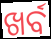
ଖର୍ବ